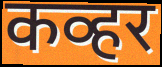
कव्हर